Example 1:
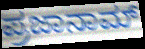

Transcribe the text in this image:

ಪ್ರಜಾನಾಮ್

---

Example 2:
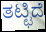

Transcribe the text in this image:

ತಟ್ಟಿದೆ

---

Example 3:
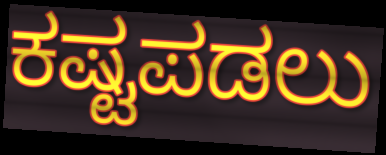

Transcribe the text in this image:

ಕಷ್ಟಪಡಲು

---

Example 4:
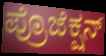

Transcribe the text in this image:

ಪ್ರೊಜೆಕ್ಷನ್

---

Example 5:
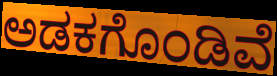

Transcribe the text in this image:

ಅಡಕಗೊಂಡಿವೆ